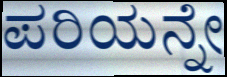
ಪರಿಯನ್ನೇ